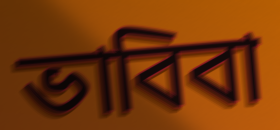
ভাবিবা